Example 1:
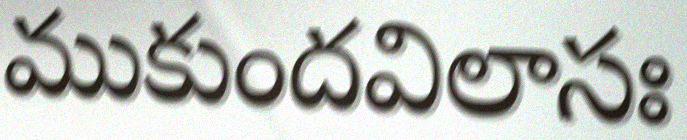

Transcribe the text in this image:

ముకుందవిలాసః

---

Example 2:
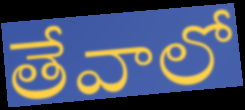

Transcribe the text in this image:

తేవాలో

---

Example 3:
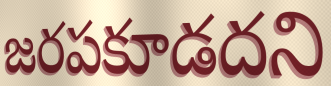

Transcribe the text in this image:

జరపకూడదని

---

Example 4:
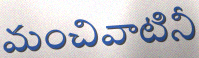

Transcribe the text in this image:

మంచివాటినీ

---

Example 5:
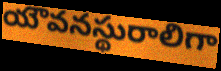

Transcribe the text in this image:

యౌవనస్థురాలిగా